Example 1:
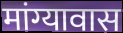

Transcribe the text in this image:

मांग्यावास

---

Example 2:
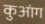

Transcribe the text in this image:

कुआंग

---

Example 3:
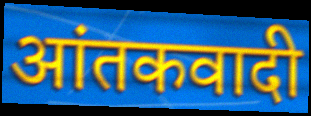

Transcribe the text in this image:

आंतकवादी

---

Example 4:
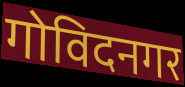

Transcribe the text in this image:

गोविदनगर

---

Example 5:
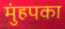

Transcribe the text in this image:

मुंहपका